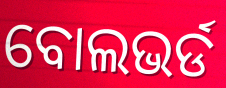
ବୋଲଭର୍ଡ